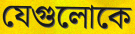
যেগুলোকে